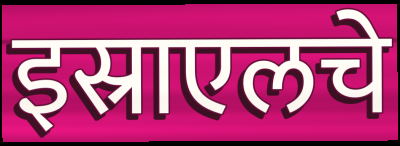
इस्राएलचे